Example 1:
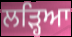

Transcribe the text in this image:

ਲੜ੍ਹਿਆ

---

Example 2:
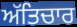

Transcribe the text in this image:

ਅੱਤਿਚਾਰ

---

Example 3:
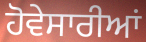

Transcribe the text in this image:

ਹੋਵੇਸਾਰੀਆਂ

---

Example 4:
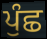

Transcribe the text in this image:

ਪੁੰਛ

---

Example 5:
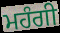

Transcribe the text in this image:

ਮਹੰਗੀ